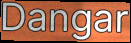
Dangar